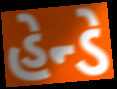
હેન્ડે